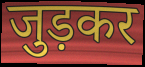
जुड़कर